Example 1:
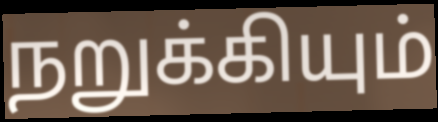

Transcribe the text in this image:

நறுக்கியும்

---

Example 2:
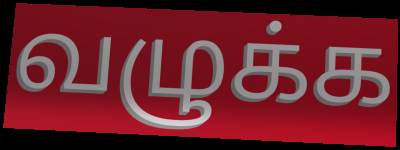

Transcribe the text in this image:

வழுக்க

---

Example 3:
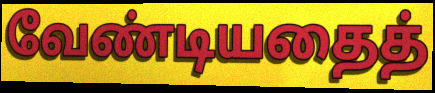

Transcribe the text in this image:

வேண்டியதைத்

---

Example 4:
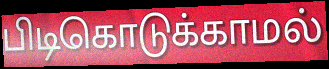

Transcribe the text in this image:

பிடிகொடுக்காமல்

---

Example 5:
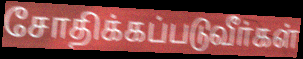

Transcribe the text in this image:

சோதிக்கப்படுவீர்கள்